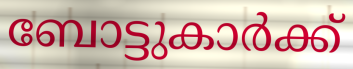
ബോട്ടുകാർക്ക്